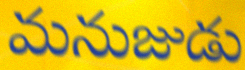
మనుజుడు